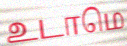
உடாமெ